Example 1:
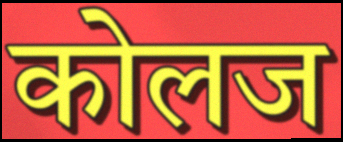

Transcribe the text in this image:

कोलज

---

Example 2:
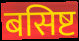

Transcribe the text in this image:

बसिष्ट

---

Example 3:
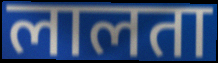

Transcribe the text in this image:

लालता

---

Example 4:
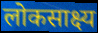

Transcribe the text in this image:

लोकसाक्ष्य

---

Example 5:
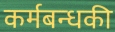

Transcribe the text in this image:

कर्मबन्धकी